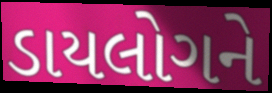
ડાયલોગને